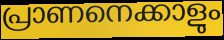
പ്രാണനെക്കാളും